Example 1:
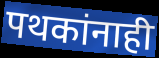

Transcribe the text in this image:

पथकांनाही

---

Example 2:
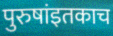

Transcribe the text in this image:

पुरुषांइतकाच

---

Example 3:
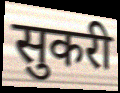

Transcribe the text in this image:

सुकरी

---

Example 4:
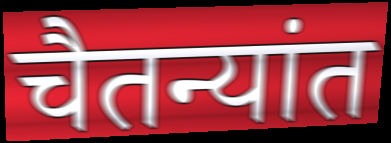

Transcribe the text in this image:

चैतन्यांत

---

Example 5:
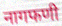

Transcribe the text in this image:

नागफणी